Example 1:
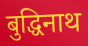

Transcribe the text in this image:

बुद्धिनाथ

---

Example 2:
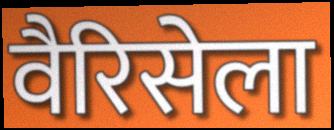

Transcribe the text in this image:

वैरिसेला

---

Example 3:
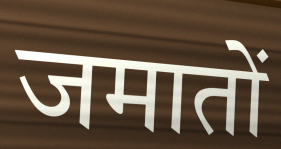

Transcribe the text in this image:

जमातों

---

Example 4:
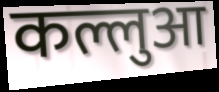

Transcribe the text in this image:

कल्लुआ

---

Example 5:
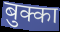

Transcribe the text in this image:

बुक्का